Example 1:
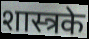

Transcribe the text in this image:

शास्त्रके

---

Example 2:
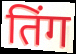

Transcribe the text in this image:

तिंग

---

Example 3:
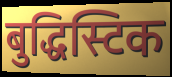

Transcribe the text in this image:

बुद्धिस्टिक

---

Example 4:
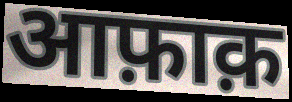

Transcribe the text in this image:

आफ़ाक़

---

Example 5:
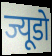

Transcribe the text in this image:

ज्यूडो